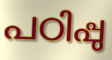
പഠിപ്പു